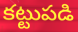
కట్టుపడి